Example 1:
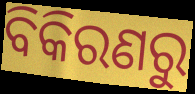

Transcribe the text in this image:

ବିକିରଣରୁ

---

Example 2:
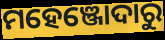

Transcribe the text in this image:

ମହେଞ୍ଜୋଦାରୁ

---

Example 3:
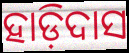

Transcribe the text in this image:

ହାଡ଼ିଦାସ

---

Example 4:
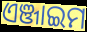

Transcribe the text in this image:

ଏଞ୍ଜାଇମ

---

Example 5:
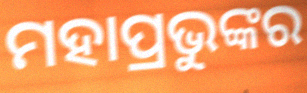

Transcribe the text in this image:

ମହାପ୍ରଭୁଙ୍କର